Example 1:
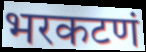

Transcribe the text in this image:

भरकटणं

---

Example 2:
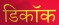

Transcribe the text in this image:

डिकॉक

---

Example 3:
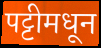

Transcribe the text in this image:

पट्टीमधून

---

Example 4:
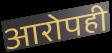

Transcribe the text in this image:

आरोपही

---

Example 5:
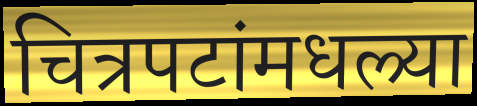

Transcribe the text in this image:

चित्रपटांमधल्या